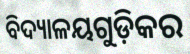
ବିଦ୍ୟାଳୟଗୁଡ଼ିକର